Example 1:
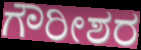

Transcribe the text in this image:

ಗೌರೀಶರ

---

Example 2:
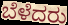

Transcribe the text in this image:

ಬೆಳೆದರು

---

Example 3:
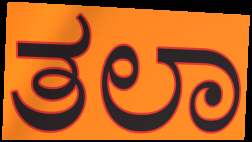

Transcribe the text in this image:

ತಲಾ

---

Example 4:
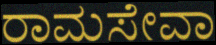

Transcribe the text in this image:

ರಾಮಸೇವಾ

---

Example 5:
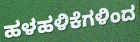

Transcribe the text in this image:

ಹಳಹಳಿಕೆಗಳಿಂದ